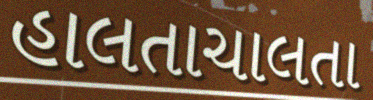
હાલતાચાલતા